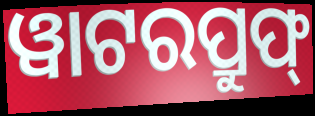
ୱାଟରପ୍ରୁଫ୍